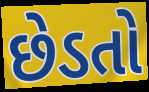
છેડતો